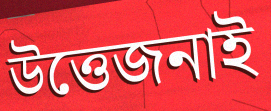
উত্তেজনাই